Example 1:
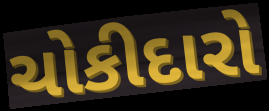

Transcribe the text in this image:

ચોકીદારો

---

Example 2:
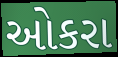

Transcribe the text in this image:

ઓકરા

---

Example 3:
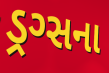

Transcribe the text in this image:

ડ્રગ્સના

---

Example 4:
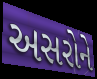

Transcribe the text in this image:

અસરોને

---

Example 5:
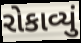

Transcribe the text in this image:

રોકાવ્યું